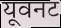
यूवनट